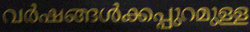
വർഷങ്ങൾക്കപ്പുറമുള്ള